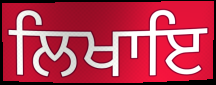
ਲਿਖਾਇ